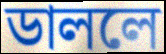
ডাললে